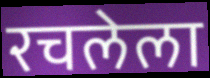
रचलेला